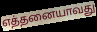
எத்தனையாவது